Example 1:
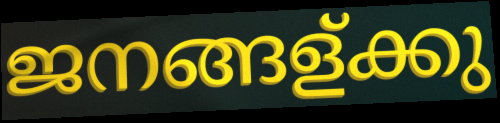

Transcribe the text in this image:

ജനങ്ങള്ക്കു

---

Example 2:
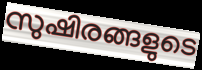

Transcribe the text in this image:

സുഷിരങ്ങളുടെ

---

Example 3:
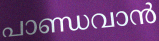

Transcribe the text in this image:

പാണ്ഡവാൻ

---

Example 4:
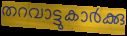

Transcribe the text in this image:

തറവാട്ടുകാർക്കു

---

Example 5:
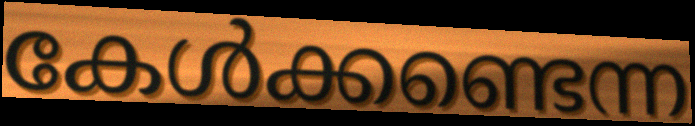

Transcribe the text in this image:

കേൾക്കണ്ടെന്ന